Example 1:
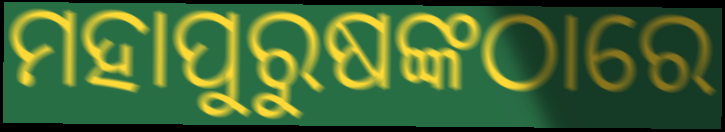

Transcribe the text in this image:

ମହାପୁରୁଷଙ୍କଠାରେ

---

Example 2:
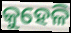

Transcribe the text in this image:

କୁହେଳି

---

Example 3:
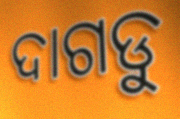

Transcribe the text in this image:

ଦାଗଡୁ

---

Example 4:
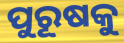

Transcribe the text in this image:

ପୁରୂଷକୁ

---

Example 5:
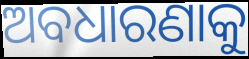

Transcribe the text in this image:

ଅବଧାରଣାକୁ